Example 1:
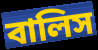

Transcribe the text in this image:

বালিস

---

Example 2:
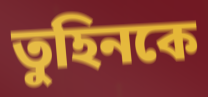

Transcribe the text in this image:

তুহিনকে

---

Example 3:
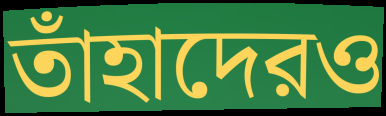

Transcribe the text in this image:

তাঁহাদেরও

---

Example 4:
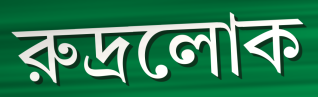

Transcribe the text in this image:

রুদ্রলোক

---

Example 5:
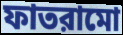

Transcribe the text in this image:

ফাতরামো